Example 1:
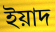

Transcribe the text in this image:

ইয়াদ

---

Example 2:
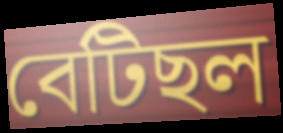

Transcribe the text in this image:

বেটিছল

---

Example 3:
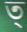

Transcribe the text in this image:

ত্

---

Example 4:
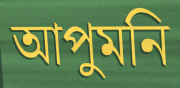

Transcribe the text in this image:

আপুমনি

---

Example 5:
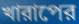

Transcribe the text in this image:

খারাপের